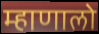
म्हाणालो